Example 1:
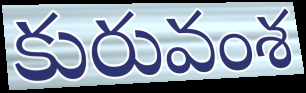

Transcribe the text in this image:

కురువంశ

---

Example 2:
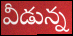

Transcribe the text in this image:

వీడున్న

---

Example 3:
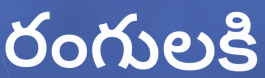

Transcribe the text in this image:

రంగులకి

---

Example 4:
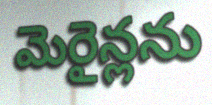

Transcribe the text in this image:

మెరైన్లను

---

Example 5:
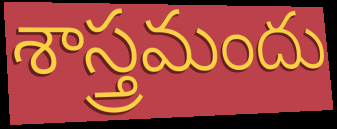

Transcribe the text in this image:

శాస్త్రమందు